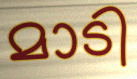
മാടി